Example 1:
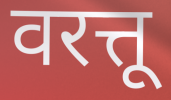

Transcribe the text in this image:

वरत्तू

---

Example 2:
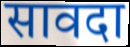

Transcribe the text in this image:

सावदा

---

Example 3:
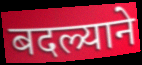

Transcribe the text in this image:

बदल्याने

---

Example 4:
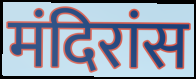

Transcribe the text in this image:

मंदिरांस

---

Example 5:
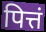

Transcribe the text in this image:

पित्तं